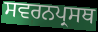
ਸਵਰਨਪ੍ਰਸਥ